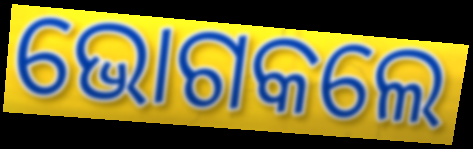
ଭୋଗକଲେ